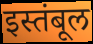
इस्तंबूल